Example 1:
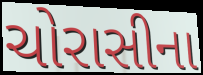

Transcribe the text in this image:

ચોરાસીના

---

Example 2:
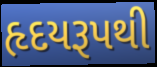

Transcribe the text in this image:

હૃદયરૂપથી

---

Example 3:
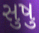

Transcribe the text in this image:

સુષુ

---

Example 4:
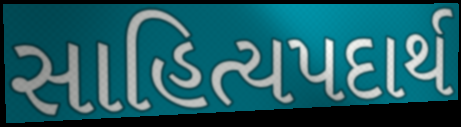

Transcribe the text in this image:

સાહિત્યપદાર્થ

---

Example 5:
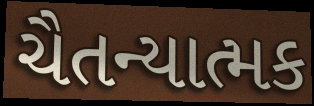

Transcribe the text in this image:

ચૈતન્યાત્મક